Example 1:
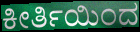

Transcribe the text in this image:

ಕೀರ್ತಿಯಿಂದ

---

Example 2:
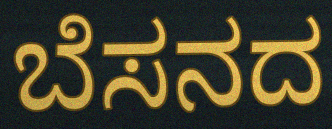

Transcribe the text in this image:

ಬೆಸನದ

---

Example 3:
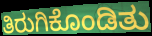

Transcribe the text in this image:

ತಿರುಗಿಕೊಂಡಿತು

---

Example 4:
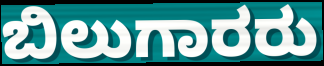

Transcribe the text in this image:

ಬಿಲುಗಾರರು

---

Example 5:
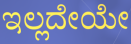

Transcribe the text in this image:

ಇಲ್ಲದೇಯೇ